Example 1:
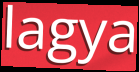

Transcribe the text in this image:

lagya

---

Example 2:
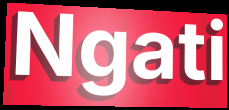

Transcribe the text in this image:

Ngati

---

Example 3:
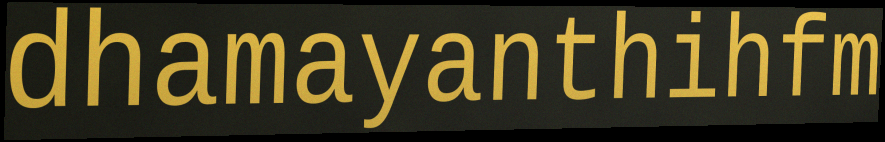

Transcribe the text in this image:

dhamayanthihfm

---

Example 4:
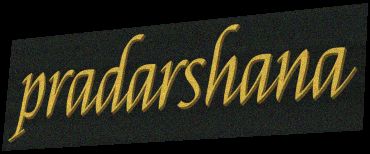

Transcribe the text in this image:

pradarshana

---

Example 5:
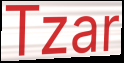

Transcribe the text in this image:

Tzar